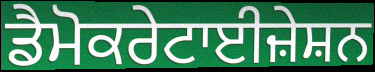
ਡੈਮੋਕਰੇਟਾਈਜ਼ੇਸ਼ਨ